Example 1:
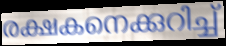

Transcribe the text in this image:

രക്ഷകനെക്കുറിച്ച്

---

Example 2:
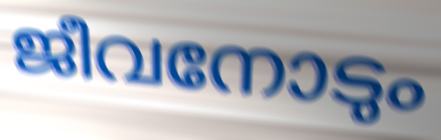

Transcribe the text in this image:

ജീവനോടും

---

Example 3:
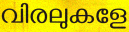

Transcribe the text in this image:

വിരലുകളേ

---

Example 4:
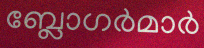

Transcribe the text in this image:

ബ്ലോഗർമാർ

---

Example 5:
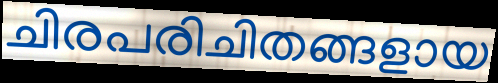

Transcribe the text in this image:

ചിരപരിചിതങ്ങളായ